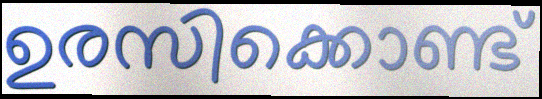
ഉരസിക്കൊണ്ട്